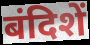
बंदिशें